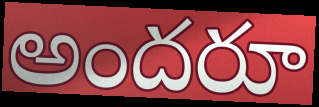
అందరూ